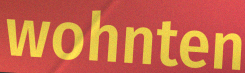
wohnten